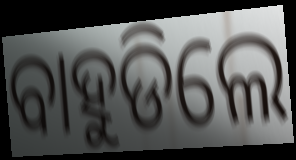
ବାହୁଡିଲେ